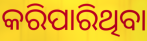
କରିପାରିଥିବା